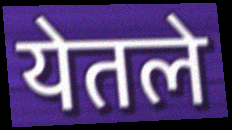
येतले